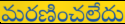
మరణించలేదు